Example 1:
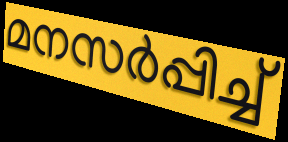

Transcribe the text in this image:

മനസർപ്പിച്ച്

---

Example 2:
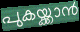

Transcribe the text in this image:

പുകയ്ക്കാൻ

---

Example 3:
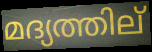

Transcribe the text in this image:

മദ്യത്തില്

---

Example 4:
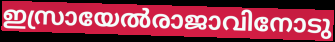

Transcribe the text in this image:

ഇസ്രായേൽരാജാവിനോടു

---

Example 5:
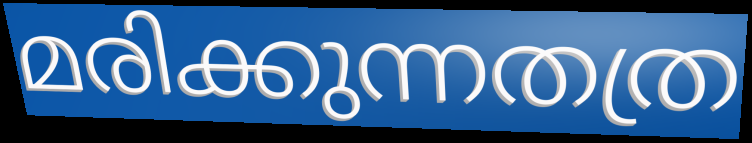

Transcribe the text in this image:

മരിക്കുന്നതത്ര